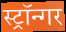
स्ट्रॉन्गर